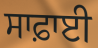
ਸਾਫ਼ਾਈ